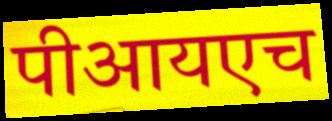
पीआयएच